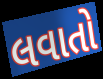
લવાતો